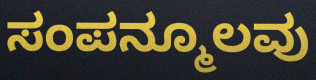
ಸಂಪನ್ಮೂಲವು